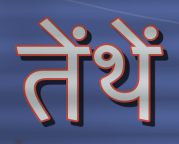
तेंथें